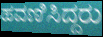
ಹವಣಿಸಿದ್ದರು